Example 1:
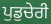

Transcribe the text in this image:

ਪੁਡੁਚੇਰੀ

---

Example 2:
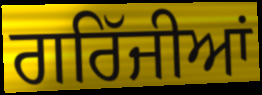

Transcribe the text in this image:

ਗਰਿੱਜੀਆਂ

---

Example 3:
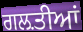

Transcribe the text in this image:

ਗਲ਼ਤੀਆਂ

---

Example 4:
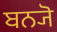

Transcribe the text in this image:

ਬਨ੍ਯੋ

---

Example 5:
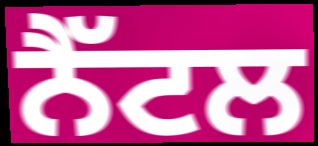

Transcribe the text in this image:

ਨੈੱਟਲ